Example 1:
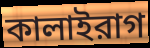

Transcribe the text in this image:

কালাইরাগ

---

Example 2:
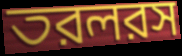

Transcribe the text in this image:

তরলরস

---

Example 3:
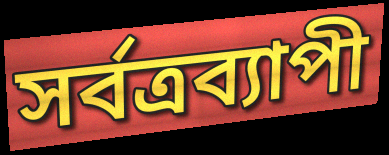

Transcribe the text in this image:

সর্বত্রব্যাপী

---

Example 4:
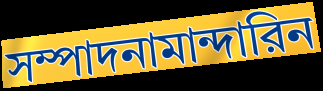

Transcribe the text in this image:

সম্পাদনামান্দারিন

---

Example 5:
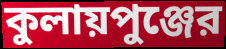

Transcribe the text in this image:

কুলায়পুঞ্জের